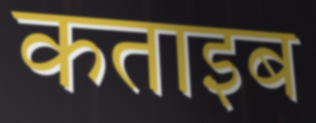
कताइब